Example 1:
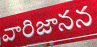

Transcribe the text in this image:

వారిజానన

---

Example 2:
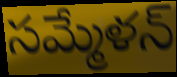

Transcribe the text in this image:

సమ్మేళన్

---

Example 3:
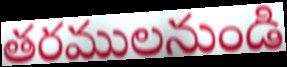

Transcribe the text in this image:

తరములనుండి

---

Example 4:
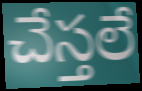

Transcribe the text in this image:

చేస్తలే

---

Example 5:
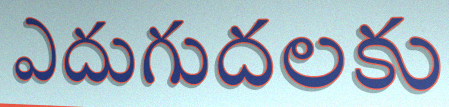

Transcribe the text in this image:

ఎదుగుదలకు